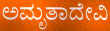
ಅಮೃತಾದೇವಿ